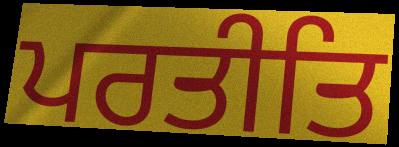
ਪਰਤੀਤਿ